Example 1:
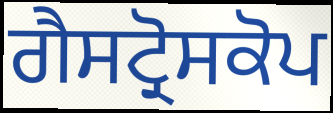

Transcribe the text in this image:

ਗੈਸਟ੍ਰੋਸਕੋਪ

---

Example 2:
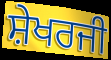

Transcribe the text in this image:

ਸ਼ੇਖਰਜੀ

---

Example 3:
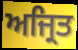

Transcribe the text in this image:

ਅਜ੍ਰਿਤ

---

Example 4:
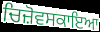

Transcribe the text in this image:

ਚਿਜ਼ੋਵਸਕਾਇਆ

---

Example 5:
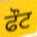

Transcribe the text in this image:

ਫੌਟ